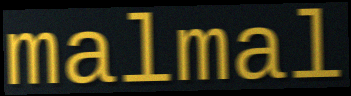
malmal